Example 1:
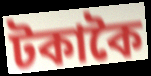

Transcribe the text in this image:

টকাকৈ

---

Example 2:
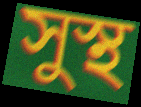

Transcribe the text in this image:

সুস্থ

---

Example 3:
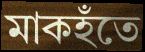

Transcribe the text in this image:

মাকহঁতে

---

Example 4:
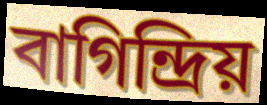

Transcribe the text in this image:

বাগিন্দ্ৰিয়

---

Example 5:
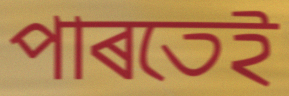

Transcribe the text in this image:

পাৰতেই